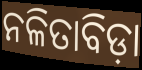
ନଳିତାବିଡ଼ା